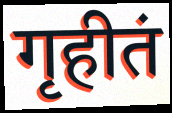
गृहीतं